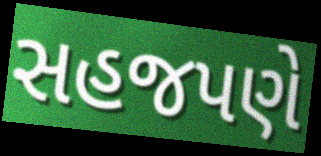
સહજપણે